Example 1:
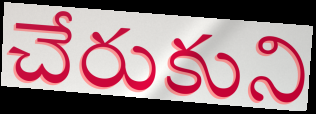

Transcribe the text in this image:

చేరుకుని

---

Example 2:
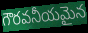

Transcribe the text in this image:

గౌరవనీయమైన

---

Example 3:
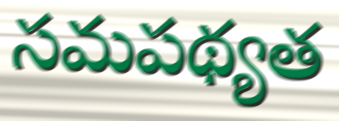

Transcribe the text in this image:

సమపథ్యత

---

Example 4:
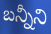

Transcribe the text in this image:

బన్నీని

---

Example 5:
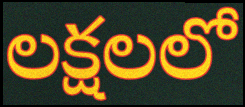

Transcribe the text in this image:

లక్షలలో